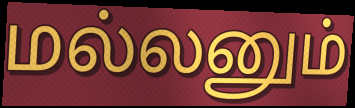
மல்லனும்